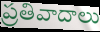
ప్రతివాదాలు